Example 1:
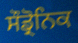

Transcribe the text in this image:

ਸੌਡ੍ਰੋਨਿਕ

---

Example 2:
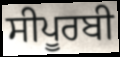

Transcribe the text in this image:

ਸੀਪੂਰਬੀ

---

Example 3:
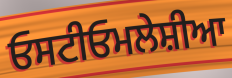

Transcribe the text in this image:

ਓਸਟੀਓਮਲੇਸ਼ੀਆ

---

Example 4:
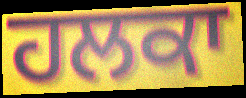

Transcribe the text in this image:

ਹਲਕਾ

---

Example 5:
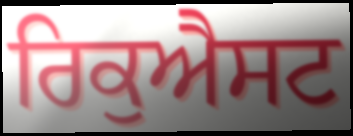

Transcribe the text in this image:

ਰਿਕੁਐਸਟ